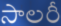
సాలరీ